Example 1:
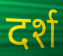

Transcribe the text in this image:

दर्श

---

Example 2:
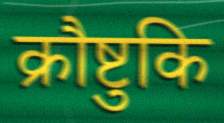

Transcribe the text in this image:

क्रौष्टुकि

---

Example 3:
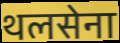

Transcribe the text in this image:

थलसेना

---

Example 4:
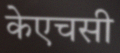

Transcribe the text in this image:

केएचसी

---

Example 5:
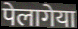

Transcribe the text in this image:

पेलागेया